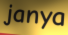
janya